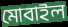
মোবাইল